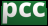
pcc